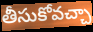
తీసుకోవచ్చా